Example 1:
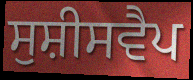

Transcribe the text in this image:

ਸੁਸ਼ੀਸਵੈਪ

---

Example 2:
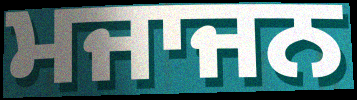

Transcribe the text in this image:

ਮਜਾਜਨ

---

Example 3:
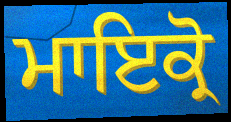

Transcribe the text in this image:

ਮਾਇਕ੍ਰੋ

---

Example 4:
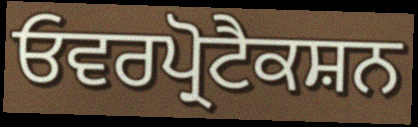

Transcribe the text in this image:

ਓਵਰਪ੍ਰੋਟੈਕਸ਼ਨ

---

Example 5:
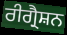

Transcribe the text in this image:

ਰੀਗ੍ਰੈਸ਼ਨ